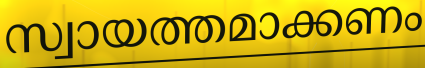
സ്വായത്തമാക്കണം